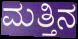
ಮತ್ತಿನ